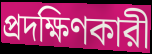
প্রদক্ষিণকারী